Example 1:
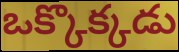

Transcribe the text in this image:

ఒక్కొక్కడు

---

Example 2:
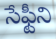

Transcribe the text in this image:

సేఫ్టీని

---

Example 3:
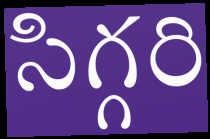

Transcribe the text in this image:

సిగ్గరి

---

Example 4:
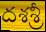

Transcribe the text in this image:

దశశ్రీ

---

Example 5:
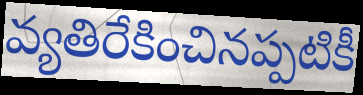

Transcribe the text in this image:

వ్యతిరేకించినప్పటికీ